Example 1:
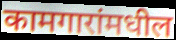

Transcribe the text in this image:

कामगारांमधील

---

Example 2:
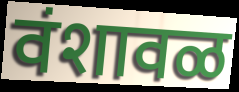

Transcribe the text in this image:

वंशावळ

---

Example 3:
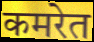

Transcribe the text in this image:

कमरेत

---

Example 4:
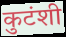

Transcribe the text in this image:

कुटंशी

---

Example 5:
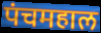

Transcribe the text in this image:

पंचमहाल